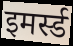
इमर्स्ड